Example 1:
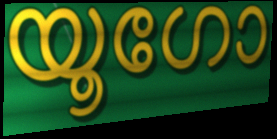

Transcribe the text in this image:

യൂഗോ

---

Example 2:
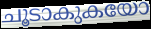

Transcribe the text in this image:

ചൂടാകുകയോ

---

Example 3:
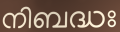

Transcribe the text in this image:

നിബദ്ധഃ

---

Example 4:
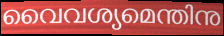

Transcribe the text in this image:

വൈവശ്യമെന്തിനു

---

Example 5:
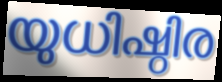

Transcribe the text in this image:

യുധിഷ്ഠിര